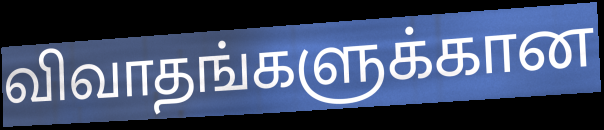
விவாதங்களுக்கான